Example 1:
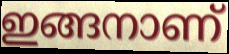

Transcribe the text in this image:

ഇങ്ങനാണ്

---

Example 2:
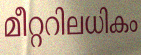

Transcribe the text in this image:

മീറ്ററിലധികം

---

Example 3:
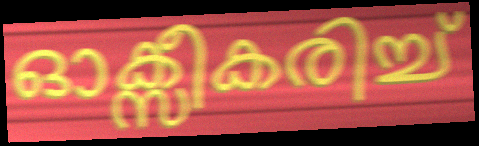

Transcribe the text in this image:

ഓക്സീകരിച്ച്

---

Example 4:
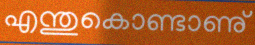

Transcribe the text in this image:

എന്തുകൊണ്ടാണു്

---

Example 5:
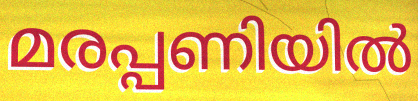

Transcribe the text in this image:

മരപ്പണിയിൽ